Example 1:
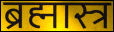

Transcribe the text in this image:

ब्रह्मास्त्र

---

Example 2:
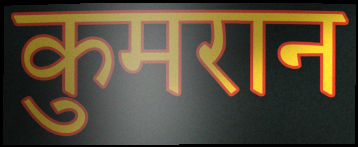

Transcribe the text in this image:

कुमरान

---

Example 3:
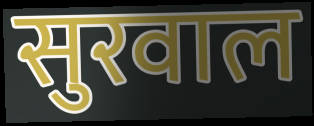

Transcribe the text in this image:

सुरवाल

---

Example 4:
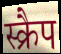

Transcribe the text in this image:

स्क्रैप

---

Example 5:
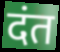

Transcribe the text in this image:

दंत